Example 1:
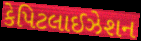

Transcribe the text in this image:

કેપિટલાઈઝેશન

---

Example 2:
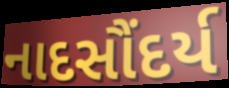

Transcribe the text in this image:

નાદસૌંદર્ય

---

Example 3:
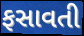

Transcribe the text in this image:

ફસાવતી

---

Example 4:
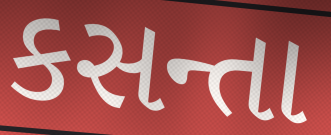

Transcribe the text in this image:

કસન્તા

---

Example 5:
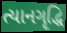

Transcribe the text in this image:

ત્યાનગૃદ્ધિ